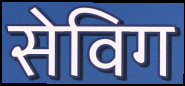
सेविग